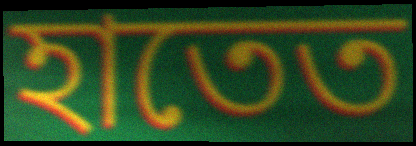
হাতেত